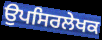
ਉਪਸਿਰਲੇਖਕ